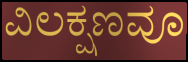
ವಿಲಕ್ಷಣವೂ